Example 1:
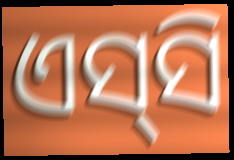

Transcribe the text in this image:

ଏସ୍‍ସି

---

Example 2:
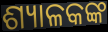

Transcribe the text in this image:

ଶ୍ୟାଳକଙ୍କ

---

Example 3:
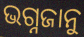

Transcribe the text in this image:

ଭଗ୍ନଜାନୁ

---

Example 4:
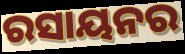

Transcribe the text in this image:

ରସାୟନର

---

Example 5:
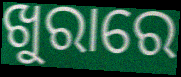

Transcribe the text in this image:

ଖୁରାରେ